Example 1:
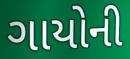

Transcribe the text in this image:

ગાયોની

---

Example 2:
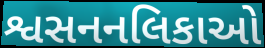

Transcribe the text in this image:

શ્વસનનલિકાઓ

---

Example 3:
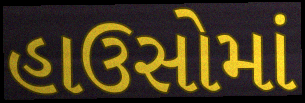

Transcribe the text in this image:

હાઉસોમાં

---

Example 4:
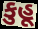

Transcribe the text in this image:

કુહૂ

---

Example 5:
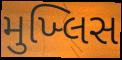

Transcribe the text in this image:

મુખ્લિસ